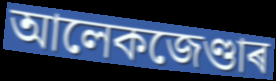
আলেকজেণ্ডাৰ